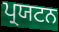
ਪ੍ਰਯਟਨ